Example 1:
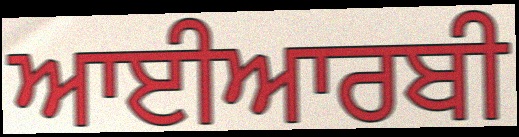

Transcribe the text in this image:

ਆਈਆਰਬੀ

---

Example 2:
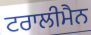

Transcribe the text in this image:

ਟਰਾਲੀਮੈਨ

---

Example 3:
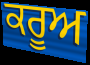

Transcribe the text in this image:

ਕਰੂਅ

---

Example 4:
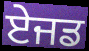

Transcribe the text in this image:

ਏਜਡ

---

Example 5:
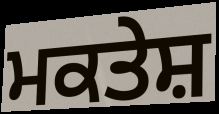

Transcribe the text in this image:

ਮਕਤੇਸ਼